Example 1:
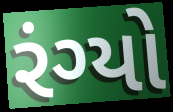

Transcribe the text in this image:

રંગ્યો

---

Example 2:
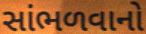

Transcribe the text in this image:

સાંભળવાનો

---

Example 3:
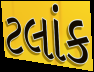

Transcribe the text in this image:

ટલાંક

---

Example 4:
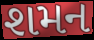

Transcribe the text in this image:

શમન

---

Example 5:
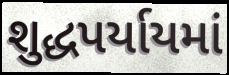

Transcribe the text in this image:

શુદ્ધપર્યાયમાં